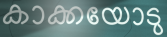
കാക്കയോടു